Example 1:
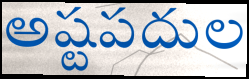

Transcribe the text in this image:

అష్టపదుల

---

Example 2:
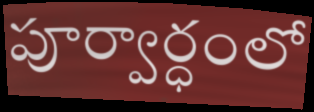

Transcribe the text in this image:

పూర్వార్ధంలో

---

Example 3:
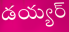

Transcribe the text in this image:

డయ్యర్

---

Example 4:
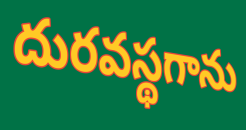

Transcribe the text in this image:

దురవస్థగాను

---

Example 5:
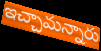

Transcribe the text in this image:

ఇచ్చామన్నారు